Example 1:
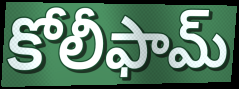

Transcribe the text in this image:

కోలీఫామ్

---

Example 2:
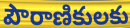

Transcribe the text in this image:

పౌరాణికులకు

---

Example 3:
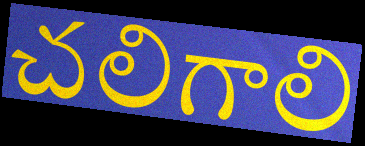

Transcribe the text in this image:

చలిగాలి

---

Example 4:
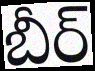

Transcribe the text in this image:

బీర్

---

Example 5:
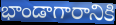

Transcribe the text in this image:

భాండాగారానికి